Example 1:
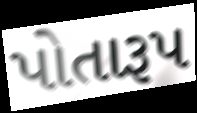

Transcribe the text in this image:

પોતારૂપ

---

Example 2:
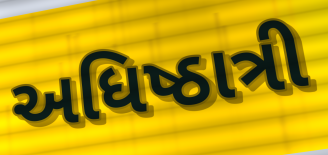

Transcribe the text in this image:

અધિષ્ઠાત્રી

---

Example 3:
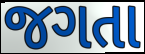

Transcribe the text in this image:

જગતા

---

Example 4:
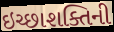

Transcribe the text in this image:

ઇચ્છાશક્તિની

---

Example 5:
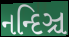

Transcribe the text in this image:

નન્દિઞ્ચ